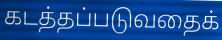
கடத்தப்படுவதைக்